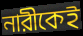
নারীকেই